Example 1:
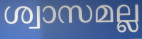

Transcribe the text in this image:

ശ്വാസമല്ല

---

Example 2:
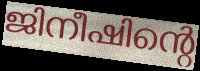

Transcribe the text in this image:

ജിനീഷിന്റെ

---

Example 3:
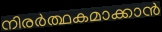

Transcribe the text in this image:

നിരർത്ഥകമാക്കാൻ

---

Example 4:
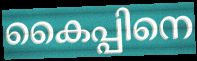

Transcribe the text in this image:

കൈപ്പിനെ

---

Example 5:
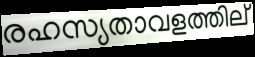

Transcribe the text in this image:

രഹസ്യതാവളത്തില്